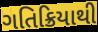
ગતિક્રિયાથી